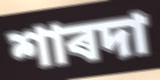
শাৰদা